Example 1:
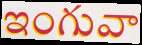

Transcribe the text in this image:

ఇంగువా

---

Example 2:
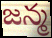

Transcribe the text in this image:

జన్మ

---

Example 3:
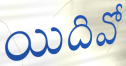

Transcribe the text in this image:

యిదివో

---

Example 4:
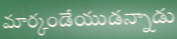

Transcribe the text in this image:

మార్కండేయుడన్నాడు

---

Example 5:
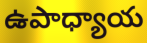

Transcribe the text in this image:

ఉపాధ్యాయ